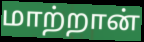
மாற்றான்